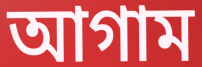
আগাম